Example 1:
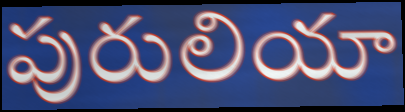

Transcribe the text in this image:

పురులియా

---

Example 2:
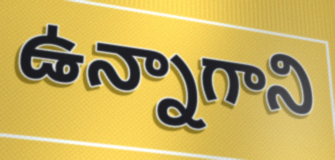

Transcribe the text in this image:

ఉన్నాగాని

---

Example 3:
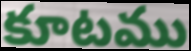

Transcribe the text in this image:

కూటము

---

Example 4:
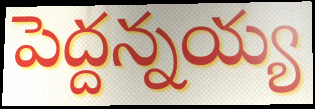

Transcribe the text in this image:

పెద్దన్నయ్య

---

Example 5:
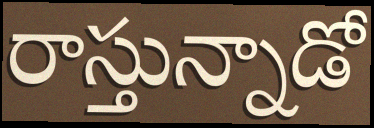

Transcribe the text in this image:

రాస్తున్నాడో